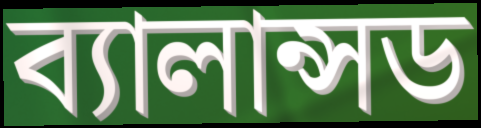
ব্যালান্সড